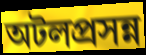
অটলপ্রসন্ন